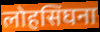
लोहसिंघना